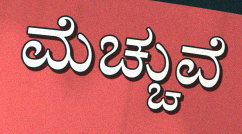
ಮೆಚ್ಚುವೆ